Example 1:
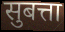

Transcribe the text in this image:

सुबत्ता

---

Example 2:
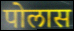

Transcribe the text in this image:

पोलास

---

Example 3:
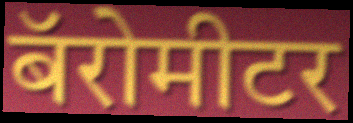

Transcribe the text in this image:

बॅरोमीटर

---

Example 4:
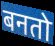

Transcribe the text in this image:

बनतो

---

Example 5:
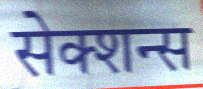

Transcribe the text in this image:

सेक्शन्स